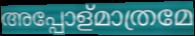
അപ്പോള്മാത്രമേ